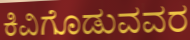
ಕಿವಿಗೊಡುವವರ